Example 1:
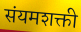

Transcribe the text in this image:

संयमशक्ती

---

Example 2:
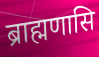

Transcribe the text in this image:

ब्राह्मणासि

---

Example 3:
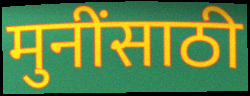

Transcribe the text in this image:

मुनींसाठी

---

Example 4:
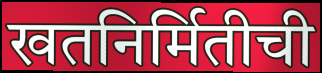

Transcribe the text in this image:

खतनिर्मितीची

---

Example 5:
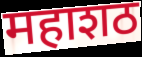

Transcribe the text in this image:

महाशठ